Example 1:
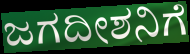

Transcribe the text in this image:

ಜಗದೀಶನಿಗೆ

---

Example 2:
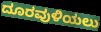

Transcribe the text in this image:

ದೂರವುಳಿಯಲು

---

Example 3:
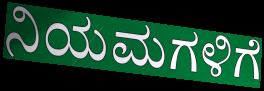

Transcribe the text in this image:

ನಿಯಮಗಳಿಗೆ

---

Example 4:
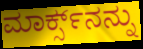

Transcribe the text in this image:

ಮಾರ್ಕ್ಸ್‌ನನ್ನು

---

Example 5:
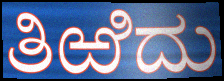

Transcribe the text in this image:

ತಿಱಿದು